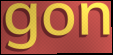
gon